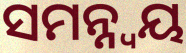
ସମନ୍ନ୍ୱୟ